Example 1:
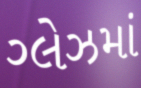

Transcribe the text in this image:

ગ્લેઝમાં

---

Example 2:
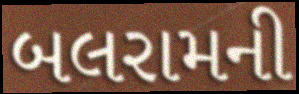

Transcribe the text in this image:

બલરામની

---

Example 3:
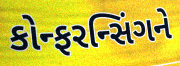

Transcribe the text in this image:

કોન્ફરન્સિંગને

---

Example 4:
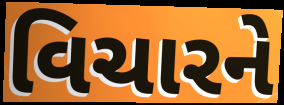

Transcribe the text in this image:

વિચારને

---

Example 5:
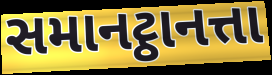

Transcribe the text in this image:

સમાનટ્ઠાનત્તા